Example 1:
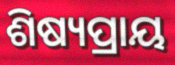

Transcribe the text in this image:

ଶିଷ୍ୟପ୍ରାୟ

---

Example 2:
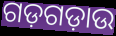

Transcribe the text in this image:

ଗଡ଼ଗଡ଼ାଉ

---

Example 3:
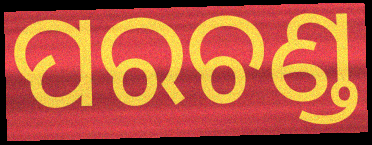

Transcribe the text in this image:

ପରଚଣ୍ଡ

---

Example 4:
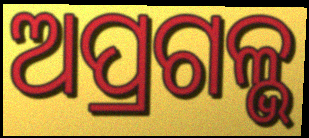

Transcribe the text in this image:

ଅପ୍ରଗଳ୍ଭ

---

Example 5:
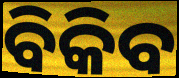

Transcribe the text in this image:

ବିକିବ